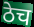
ठेच